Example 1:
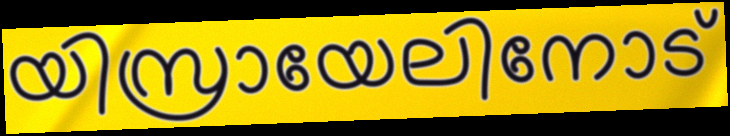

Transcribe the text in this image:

യിസ്രായേലിനോട്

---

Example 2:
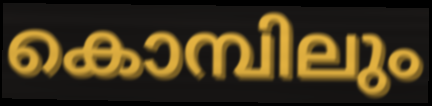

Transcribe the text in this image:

കൊമ്പിലും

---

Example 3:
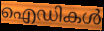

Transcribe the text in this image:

ഐഡികൾ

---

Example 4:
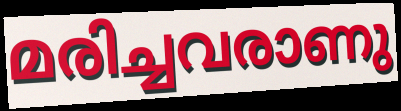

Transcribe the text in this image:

മരിച്ചവരാണു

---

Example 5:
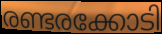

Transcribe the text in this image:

രണ്ടരക്കോടി